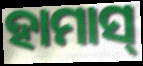
ହାମାସ୍